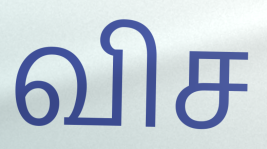
விச